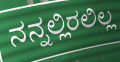
ನನ್ನಲ್ಲಿರಲಿಲ್ಲ